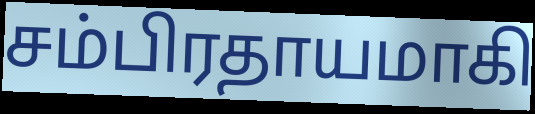
சம்பிரதாயமாகி